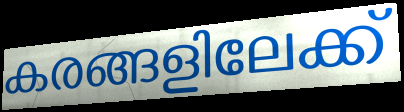
കരങ്ങളിലേക്ക്